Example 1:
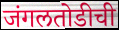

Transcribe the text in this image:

जंगलतोडीची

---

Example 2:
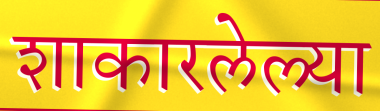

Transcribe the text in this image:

शाकारलेल्या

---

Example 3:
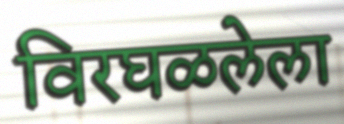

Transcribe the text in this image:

विरघळलेला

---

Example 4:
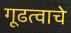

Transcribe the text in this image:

गूढत्वाचे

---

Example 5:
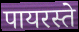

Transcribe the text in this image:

पायरस्ते